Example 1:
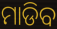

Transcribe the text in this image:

ମାଡିବ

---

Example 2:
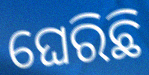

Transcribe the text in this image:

ଘେରିଛି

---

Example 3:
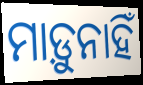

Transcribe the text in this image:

ମାଡ଼ୁନାହିଁ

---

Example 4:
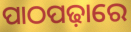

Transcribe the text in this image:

ପାଠପଢ଼ାରେ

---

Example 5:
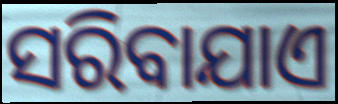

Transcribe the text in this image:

ସରିବାଯାଏ